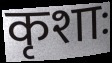
कृशाः